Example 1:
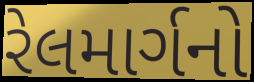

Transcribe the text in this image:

રેલમાર્ગનો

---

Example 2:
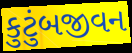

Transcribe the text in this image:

કુટુંબજીવન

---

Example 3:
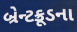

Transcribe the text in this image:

બ્રેન્ટક્રૂડના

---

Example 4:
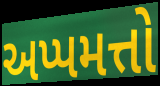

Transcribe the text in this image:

અપ્પમત્તો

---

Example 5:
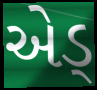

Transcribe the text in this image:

એડ્